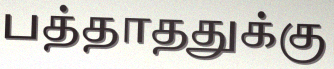
பத்தாததுக்கு